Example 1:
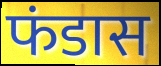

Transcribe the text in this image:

फंडास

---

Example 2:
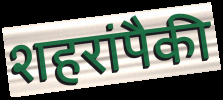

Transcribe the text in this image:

शहरांपैकी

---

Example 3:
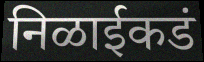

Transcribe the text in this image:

निळाईकडं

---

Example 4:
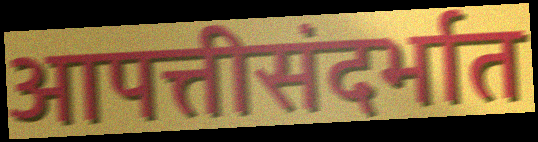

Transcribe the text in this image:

आपत्तीसंदर्भात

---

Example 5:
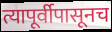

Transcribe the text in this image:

त्यापूर्वीपासूनच